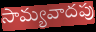
సామ్యవాదపు